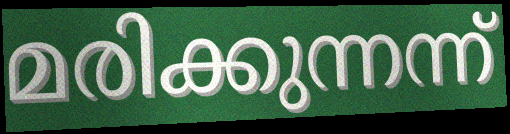
മരിക്കുന്നന്ന്